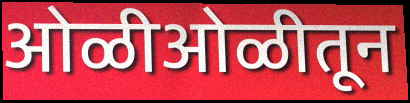
ओळीओळीतून